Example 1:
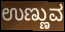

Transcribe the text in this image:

ಉಣ್ಣುವ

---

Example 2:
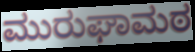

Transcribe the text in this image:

ಮುರುಘಾಮಠ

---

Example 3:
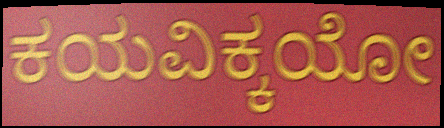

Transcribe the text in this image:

ಕಯವಿಕ್ಕಯೋ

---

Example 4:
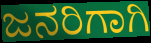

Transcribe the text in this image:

ಜನರಿಗಾಗಿ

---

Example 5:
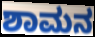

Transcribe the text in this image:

ಶಾಮನ